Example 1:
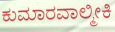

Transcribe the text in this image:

ಕುಮಾರವಾಲ್ಮೀಕಿ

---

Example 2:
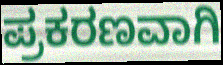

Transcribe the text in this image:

ಪ್ರಕರಣವಾಗಿ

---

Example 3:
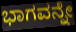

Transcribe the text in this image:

ಭಾಗವನ್ನೇ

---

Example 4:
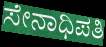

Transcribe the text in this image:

ಸೇನಾಧಿಪತಿ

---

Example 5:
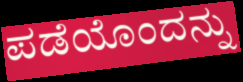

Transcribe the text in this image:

ಪಡೆಯೊಂದನ್ನು